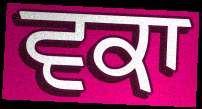
ਵਕਾ